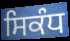
ਸਿਕੰਧ